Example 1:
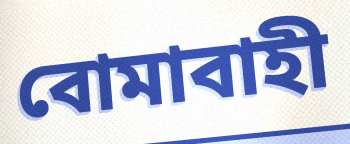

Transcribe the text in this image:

বোমাবাহী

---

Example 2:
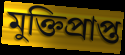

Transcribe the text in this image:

মুক্তিপ্রাপ্ত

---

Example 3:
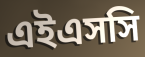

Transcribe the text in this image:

এইএসসি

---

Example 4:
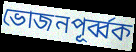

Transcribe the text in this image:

ভোজনপূর্ব্বক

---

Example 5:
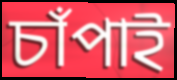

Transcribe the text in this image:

চাঁপাই